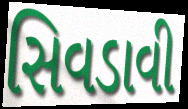
સિવડાવી